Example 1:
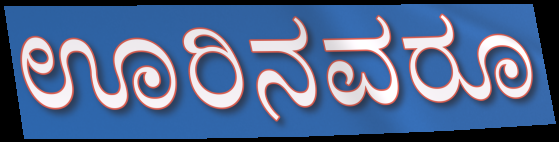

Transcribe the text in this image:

ಊರಿನವರೂ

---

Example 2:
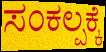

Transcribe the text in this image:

ಸಂಕಲ್ಪಕ್ಕೆ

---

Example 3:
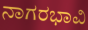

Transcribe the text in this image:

ನಾಗರಭಾವಿ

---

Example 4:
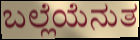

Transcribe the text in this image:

ಬಲ್ಲೆಯೆನುತ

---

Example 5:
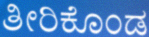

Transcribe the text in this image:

ತೀರಿಕೊಂಡ